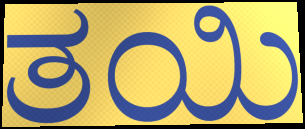
ತಯಿ